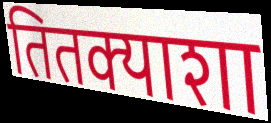
तितक्याशा